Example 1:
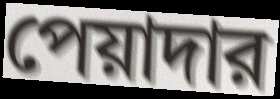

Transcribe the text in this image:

পেয়াদার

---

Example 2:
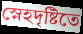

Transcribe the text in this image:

স্নেহদৃষ্টিতে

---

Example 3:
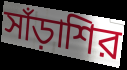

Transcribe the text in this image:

সাঁড়াশির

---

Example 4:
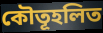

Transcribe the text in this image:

কৌতূহলিত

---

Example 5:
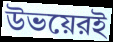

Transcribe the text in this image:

উভয়েরই